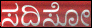
ಸದಿಸೋ